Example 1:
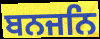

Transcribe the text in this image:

ਬਨਜਨਿ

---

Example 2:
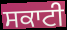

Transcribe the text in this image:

ਸਕਾਟੀ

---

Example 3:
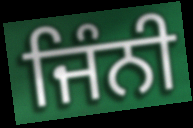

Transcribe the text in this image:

ਜਿੰਨੀ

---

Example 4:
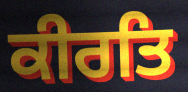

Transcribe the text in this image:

ਕੀਰਤਿ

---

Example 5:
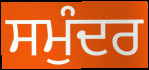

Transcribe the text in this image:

ਸਮੁੰਦਰ